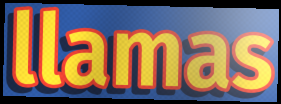
llamas